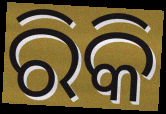
ରିକି